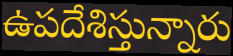
ఉపదేశిస్తున్నారు